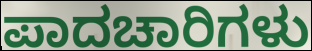
ಪಾದಚಾರಿಗಳು